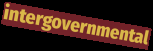
intergovernmental